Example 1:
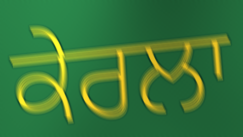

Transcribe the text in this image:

ਕੇਰਲਾ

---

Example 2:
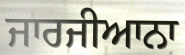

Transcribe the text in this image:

ਜਾਰਜੀਆਨਾ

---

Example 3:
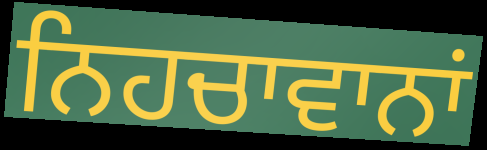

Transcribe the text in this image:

ਨਿਹਚਾਵਾਨਾਂ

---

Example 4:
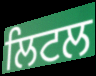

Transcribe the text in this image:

ਲਿਟਲ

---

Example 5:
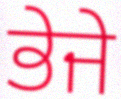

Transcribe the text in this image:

ਭੇਜੇ